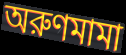
অরুণমামা